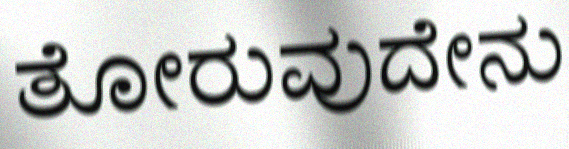
ತೋರುವುದೇನು